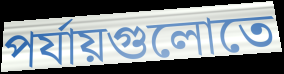
পর্যায়গুলোতে